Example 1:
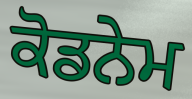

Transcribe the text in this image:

ਕੋਡਨੇਮ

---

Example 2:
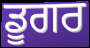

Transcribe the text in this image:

ਡੂਗਰ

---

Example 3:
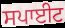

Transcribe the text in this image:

ਸਪਾਈਟ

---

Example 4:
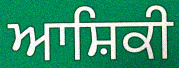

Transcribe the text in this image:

ਆਸ਼ਿਕੀ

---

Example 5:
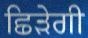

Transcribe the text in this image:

ਛਿੜੇਗੀ